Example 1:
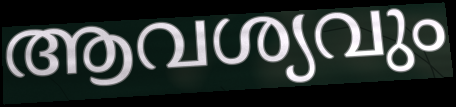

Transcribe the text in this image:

ആവശ്യവും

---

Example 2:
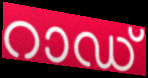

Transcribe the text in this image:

റാഡ്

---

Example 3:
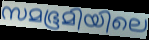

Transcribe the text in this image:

സമഭൂമിയിലെ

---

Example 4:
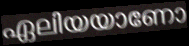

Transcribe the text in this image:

ഏലിയയാണോ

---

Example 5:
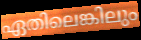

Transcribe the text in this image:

ഏതിലെങ്കിലും